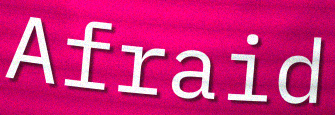
Afraid